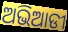
ଅଭିଆଡୀ